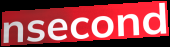
nsecond